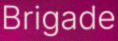
Brigade